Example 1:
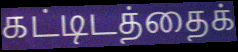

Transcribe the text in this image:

கட்டிடத்தைக்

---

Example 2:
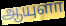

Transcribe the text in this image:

ஆயுளா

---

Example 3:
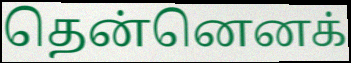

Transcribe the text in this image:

தென்னெனக்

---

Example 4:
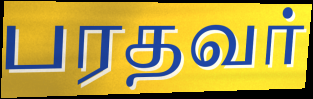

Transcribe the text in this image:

பரதவர்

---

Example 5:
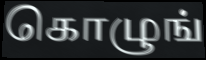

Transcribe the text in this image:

கொழுங்